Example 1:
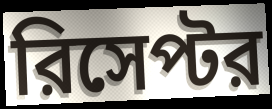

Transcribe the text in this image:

রিসেপ্টর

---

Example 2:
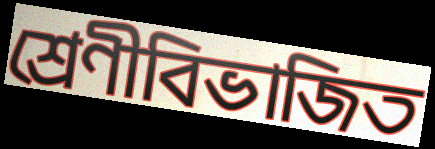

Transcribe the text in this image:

শ্রেণীবিভাজিত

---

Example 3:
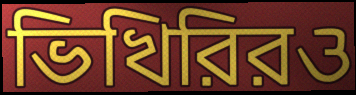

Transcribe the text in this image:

ভিখিরিরও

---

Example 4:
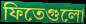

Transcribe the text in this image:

ফিতেগুলো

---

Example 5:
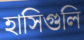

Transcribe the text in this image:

হাসিগুলি